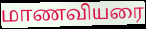
மாணவியரை